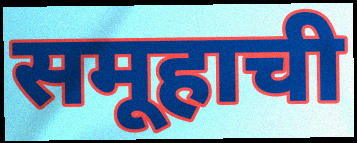
समूहाची